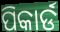
ପିକାର୍ଡ